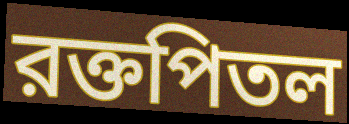
রক্তপিতল